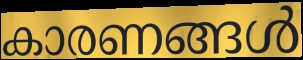
കാരണങ്ങൾ